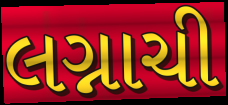
લગ્નાચી